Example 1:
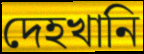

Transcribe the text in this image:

দেহখানি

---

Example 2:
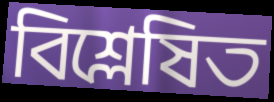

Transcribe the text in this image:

বিশ্লেষিত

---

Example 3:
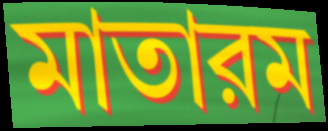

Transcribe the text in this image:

মাতারম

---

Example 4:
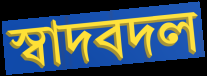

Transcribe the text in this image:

স্বাদবদল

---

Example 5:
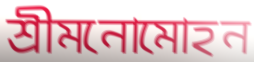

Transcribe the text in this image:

শ্রীমনোমোহন